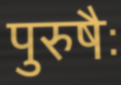
पुरुषैः